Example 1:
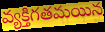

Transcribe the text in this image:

వ్యక్తిగతమయిన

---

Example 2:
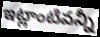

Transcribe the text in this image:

ఇట్లాంటివన్నీ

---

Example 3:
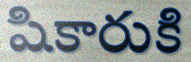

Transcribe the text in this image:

షికారుకి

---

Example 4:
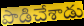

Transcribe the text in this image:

పొడిచేశాడు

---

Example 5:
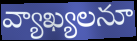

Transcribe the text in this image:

వ్యాఖ్యలనూ